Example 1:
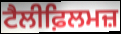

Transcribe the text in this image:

ਟੈਲੀਫ਼ਿਲਮਜ਼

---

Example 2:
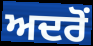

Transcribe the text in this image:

ਅਦਰੋਂ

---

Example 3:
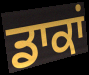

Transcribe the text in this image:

ਡਾਕਾਂ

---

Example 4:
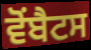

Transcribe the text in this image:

ਵੋਂਬੈਟਸ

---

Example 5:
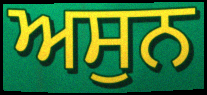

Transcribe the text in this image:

ਅਸੁਨ